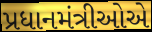
પ્રધાનમંત્રીઓએ